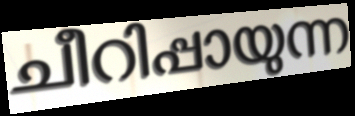
ചീറിപ്പായുന്ന